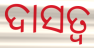
ଦାସତ୍ଵ